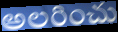
అలరించు